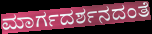
ಮಾರ್ಗದರ್ಶನದಂತೆ